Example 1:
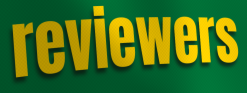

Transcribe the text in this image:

reviewers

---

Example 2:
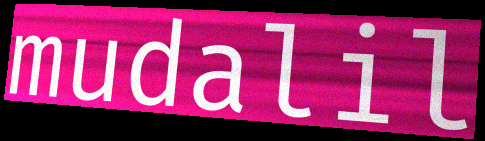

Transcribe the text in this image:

mudalil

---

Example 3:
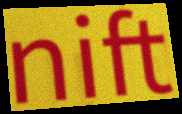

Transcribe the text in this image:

nift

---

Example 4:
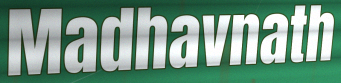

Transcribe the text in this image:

Madhavnath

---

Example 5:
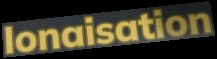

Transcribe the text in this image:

Ionaisation